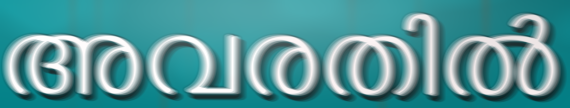
അവരതിൽ